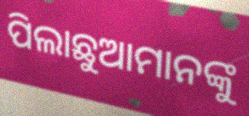
ପିଲାଛୁଆମାନଙ୍କୁ